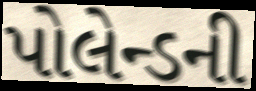
પોલેન્ડની